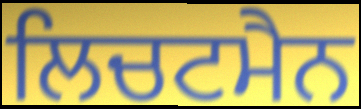
ਲਿਚਟਮੈਨ